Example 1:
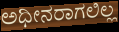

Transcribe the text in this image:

ಅಧೀನರಾಗಲಿಲ್ಲ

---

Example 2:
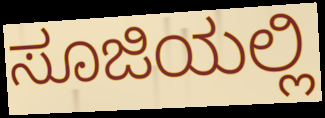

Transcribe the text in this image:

ಸೂಜಿಯಲ್ಲಿ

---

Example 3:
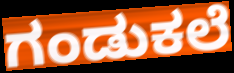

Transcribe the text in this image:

ಗಂಡುಕಲೆ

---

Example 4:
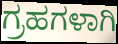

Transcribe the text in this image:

ಗ್ರಹಗಳಾಗಿ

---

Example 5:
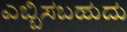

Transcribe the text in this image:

ಎಬ್ಬಿಸಬಹುದು